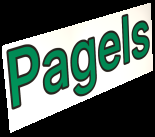
Pagels